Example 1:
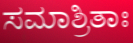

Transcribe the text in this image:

ಸಮಾಶ್ರಿತಾಃ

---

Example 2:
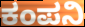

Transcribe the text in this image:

ಕಂಪನಿ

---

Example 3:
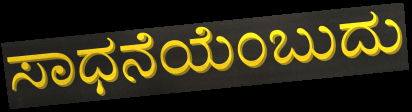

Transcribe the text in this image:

ಸಾಧನೆಯೆಂಬುದು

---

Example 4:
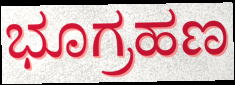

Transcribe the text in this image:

ಭೂಗ್ರಹಣ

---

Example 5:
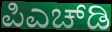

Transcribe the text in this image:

ಪಿಎಚ್‌ಡಿ